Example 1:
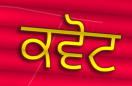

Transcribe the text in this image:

ਕਵੋਟ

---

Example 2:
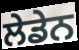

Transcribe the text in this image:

ਲੇਡੇਨ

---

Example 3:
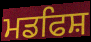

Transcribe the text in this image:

ਮਡਫਿਸ਼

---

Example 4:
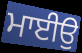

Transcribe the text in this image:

ਮਾਈਉ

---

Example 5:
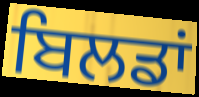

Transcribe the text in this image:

ਬਿਲਡਾਂ